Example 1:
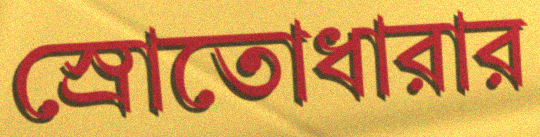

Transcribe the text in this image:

স্রোতোধারার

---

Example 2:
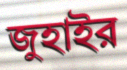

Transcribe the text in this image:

জুহাইর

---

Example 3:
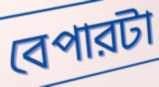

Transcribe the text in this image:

বেপারটা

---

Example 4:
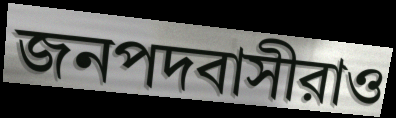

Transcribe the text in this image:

জনপদবাসীরাও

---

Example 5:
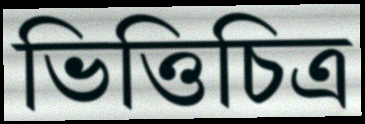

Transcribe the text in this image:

ভিত্তিচিত্র